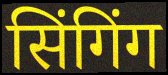
सिंगिंग